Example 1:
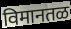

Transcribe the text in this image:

विमानतळ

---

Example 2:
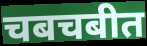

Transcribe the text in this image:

चबचबीत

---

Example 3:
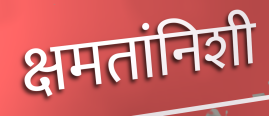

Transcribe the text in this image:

क्षमतांनिशी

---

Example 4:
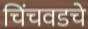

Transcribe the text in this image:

चिंचवडचे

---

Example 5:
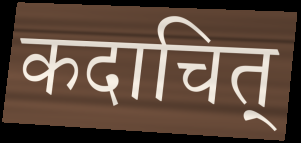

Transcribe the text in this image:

कदाचित्